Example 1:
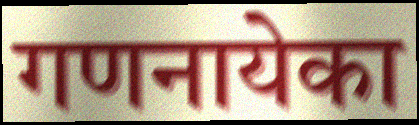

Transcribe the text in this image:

गणनायेका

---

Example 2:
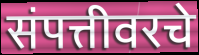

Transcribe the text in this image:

संपत्तीवरचे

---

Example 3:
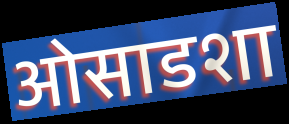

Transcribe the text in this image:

ओसाडशा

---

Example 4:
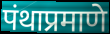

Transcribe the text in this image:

पंथाप्रमाणे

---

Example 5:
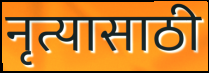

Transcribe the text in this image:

नृत्यासाठी